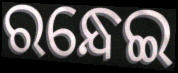
ରନ୍ଧେଇ